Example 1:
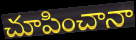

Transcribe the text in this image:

చూపించానా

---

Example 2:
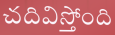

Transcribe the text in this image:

చదివిస్తోంది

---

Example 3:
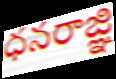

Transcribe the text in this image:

ధనరాజ్ఞి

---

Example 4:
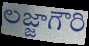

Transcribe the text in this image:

లజ్జాగౌరి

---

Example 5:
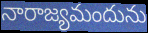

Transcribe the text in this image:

నారాజ్యమందును